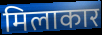
मिलाकार